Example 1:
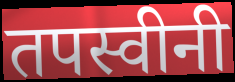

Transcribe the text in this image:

तपस्वीनी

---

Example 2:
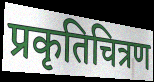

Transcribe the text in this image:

प्रकृतिचित्रण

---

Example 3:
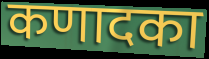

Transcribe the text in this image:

कणादका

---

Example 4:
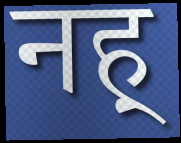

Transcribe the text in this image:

नह्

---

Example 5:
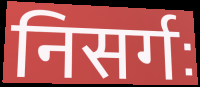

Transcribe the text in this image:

निसर्गः